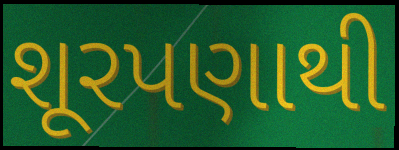
શૂરપણાથી